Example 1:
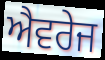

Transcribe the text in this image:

ਐਵਰੇਜ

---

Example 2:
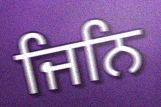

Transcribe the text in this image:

ਜਿਨਿ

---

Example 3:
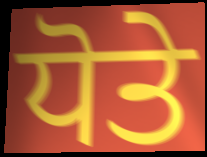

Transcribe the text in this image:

ਧੋਤੇ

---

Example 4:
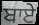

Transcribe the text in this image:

ਬਾਏ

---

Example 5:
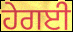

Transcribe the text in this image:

ਹੇਗਈ